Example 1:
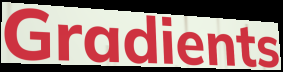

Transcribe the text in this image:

Gradients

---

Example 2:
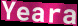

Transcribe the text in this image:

Yeara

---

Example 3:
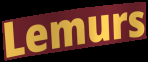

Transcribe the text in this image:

Lemurs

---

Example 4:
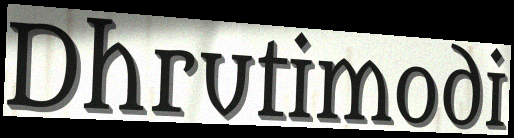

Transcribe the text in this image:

Dhrutimodi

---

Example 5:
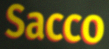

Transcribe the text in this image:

Sacco